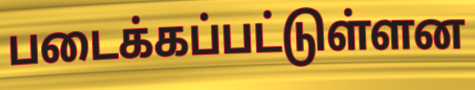
படைக்கப்பட்டுள்ளன